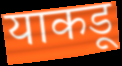
याकडू